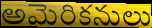
అమెరికనులు